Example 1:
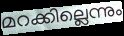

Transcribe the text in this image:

മറക്കില്ലെന്നും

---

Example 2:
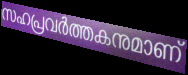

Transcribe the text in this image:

സഹപ്രവർത്തകനുമാണ്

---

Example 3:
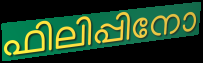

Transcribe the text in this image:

ഫിലിപ്പിനോ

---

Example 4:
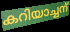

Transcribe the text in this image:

കറിയാച്ചന്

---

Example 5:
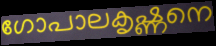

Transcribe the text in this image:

ഗോപാലകൃഷ്ണനെ